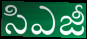
సిఎజీ